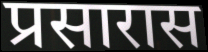
प्रसारास